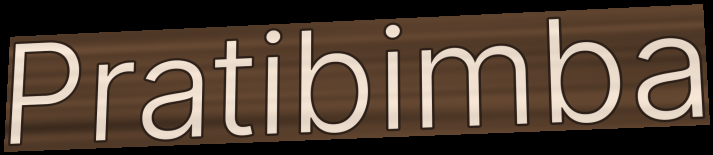
Pratibimba